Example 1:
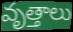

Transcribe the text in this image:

వృత్తాలు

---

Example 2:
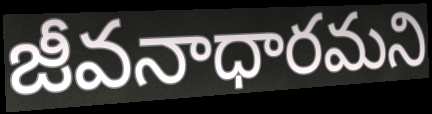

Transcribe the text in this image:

జీవనాధారమని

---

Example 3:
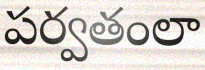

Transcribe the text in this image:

పర్వతంలా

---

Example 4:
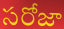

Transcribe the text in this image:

సరోజా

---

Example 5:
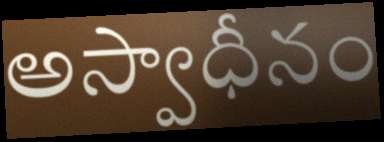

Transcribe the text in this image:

అస్వాధీనం